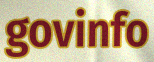
govinfo